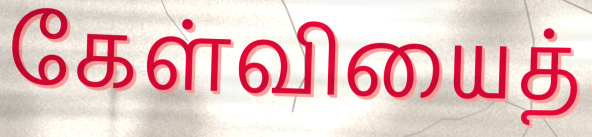
கேள்வியைத்